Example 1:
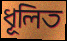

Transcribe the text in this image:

ধূলিত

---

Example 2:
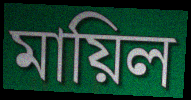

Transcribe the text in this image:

মায়িল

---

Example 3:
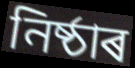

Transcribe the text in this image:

নিষ্ঠাৰ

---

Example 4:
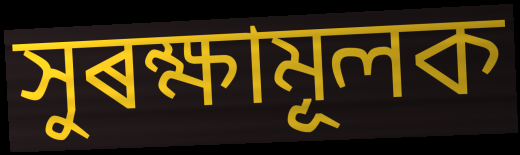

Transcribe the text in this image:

সুৰক্ষামূলক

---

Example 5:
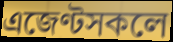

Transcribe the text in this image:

এজেণ্টসকলে